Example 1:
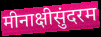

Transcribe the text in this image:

मीनाक्षीसुंदरम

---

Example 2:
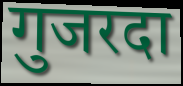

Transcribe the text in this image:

गुजरदा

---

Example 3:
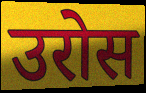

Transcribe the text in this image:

उरोस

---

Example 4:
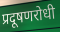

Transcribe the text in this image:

प्रदूषणरोधी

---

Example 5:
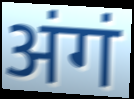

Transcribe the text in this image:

अंगं